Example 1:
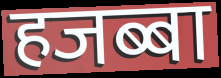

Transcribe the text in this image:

हजब्बा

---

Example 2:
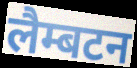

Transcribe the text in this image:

लैम्बटन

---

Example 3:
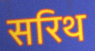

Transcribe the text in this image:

सरिथ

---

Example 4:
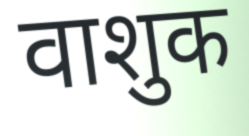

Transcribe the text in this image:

वाशुक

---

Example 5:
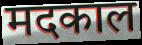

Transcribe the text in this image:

मदकाल